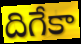
దిగేకా